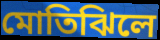
মোতিঝিলে